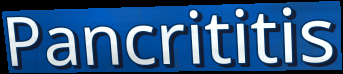
Pancrititis